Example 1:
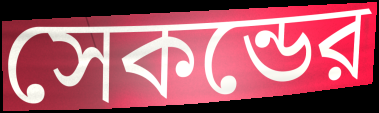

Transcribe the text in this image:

সেকন্ডের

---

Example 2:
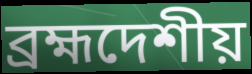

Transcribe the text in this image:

ব্রহ্মদেশীয়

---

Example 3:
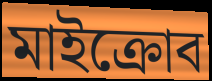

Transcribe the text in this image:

মাইক্রোব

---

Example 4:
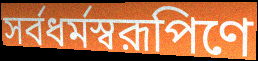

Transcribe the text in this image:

সর্বধর্মস্বরূপিণে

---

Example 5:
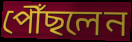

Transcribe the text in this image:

পৌঁছলেন